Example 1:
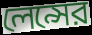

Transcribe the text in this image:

লেন্সের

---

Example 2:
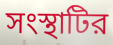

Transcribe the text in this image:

সংস্থাটির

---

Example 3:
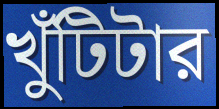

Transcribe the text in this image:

খুঁটিটার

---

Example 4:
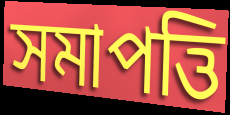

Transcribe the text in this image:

সমাপত্তি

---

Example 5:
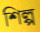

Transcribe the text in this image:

শিল্প